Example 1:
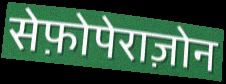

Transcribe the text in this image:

सेफ़ोपेराज़ोन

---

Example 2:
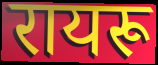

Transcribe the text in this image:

रायरू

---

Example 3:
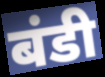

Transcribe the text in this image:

बंडी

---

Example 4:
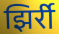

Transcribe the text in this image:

झिर्री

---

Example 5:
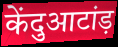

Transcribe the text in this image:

केंदुआटांड़